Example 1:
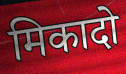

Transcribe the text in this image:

मिकादो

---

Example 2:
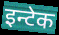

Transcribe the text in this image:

इन्टेक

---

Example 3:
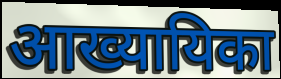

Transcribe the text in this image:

आख्यायिका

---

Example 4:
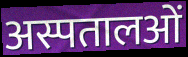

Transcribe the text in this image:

अस्पतालओं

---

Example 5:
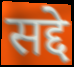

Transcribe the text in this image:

सद्दे